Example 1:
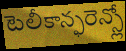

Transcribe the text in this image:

టెలీకాన్ఫరెన్స్లో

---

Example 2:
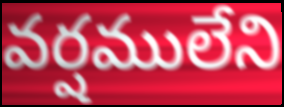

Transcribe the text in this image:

వర్షములేని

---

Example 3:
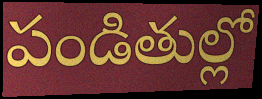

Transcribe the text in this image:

పండితుల్లో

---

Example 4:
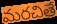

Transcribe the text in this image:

మరచితే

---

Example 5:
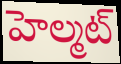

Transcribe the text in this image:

హెల్మట్